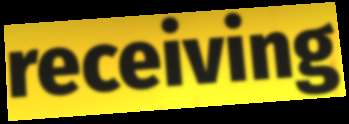
receiving